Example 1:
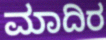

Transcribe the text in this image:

ಮಾದಿರ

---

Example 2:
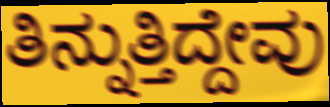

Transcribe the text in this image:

ತಿನ್ನುತ್ತಿದ್ದೇವು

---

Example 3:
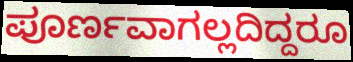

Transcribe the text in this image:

ಪೂರ್ಣವಾಗಲ್ಲದಿದ್ದರೂ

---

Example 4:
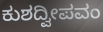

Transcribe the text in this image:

ಕುಶದ್ವೀಪವಂ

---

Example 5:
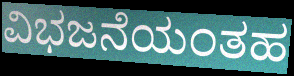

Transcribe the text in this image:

ವಿಭಜನೆಯಂತಹ